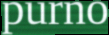
purno